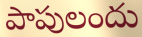
పాపులందు